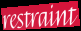
restraint